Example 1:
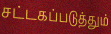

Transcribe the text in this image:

சட்டகப்படுத்தும்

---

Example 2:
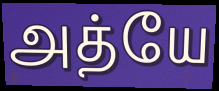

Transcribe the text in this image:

அத்யே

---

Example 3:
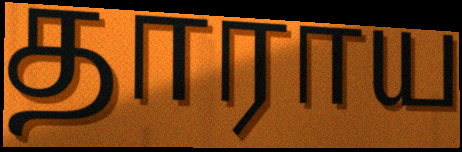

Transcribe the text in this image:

தாராய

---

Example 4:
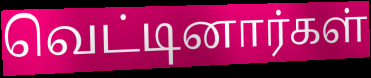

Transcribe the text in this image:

வெட்டினார்கள்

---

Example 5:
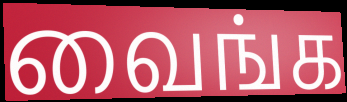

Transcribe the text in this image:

வைங்க